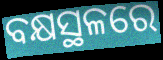
ବକ୍ଷସ୍ଥଳରେ